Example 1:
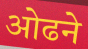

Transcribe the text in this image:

ओढने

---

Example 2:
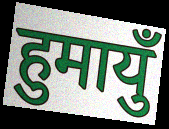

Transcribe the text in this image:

हुमायुँ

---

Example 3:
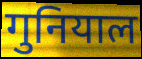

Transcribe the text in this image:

गुनियाल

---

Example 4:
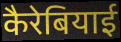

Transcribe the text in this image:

कैरेबियाई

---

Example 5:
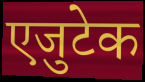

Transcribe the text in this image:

एजुटेक